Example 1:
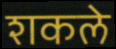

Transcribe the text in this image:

शकले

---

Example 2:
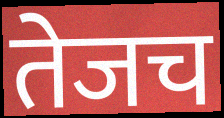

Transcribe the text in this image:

तेजच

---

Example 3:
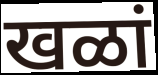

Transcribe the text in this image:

खळां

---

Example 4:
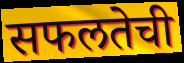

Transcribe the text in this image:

सफलतेची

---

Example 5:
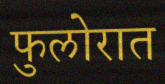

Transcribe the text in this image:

फुलोरात